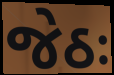
જેઠઃ